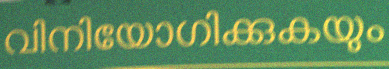
വിനിയോഗിക്കുകയും